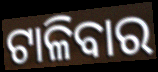
ଟାଳିବାର